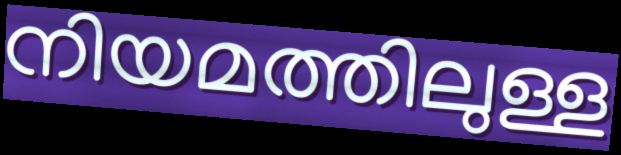
നിയമത്തിലുള്ള